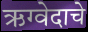
ऋग्वेदाचे